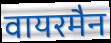
वायरमैन